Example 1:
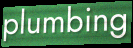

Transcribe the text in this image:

plumbing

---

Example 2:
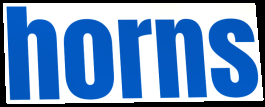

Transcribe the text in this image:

horns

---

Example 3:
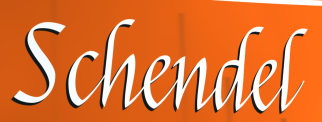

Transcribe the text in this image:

Schendel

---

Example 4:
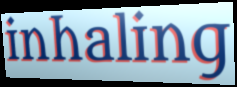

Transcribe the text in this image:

inhaling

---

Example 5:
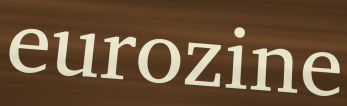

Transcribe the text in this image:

eurozine